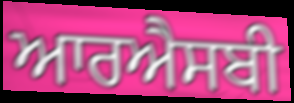
ਆਰਐਸਬੀ